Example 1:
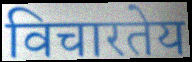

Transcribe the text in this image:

विचारतेय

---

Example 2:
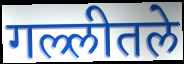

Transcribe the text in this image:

गल्लीतले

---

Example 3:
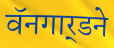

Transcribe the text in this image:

वॅनगार्डने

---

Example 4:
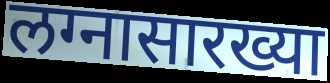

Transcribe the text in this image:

लग्नासारख्या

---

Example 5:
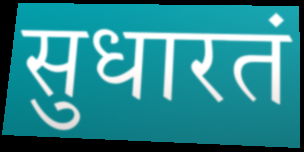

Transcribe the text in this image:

सुधारतं